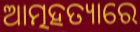
ଆତ୍ମହତ୍ୟାରେ